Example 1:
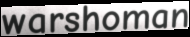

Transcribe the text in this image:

warshoman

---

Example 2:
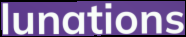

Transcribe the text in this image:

lunations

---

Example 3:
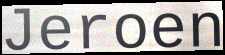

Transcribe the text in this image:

Jeroen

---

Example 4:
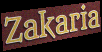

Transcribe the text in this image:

Zakaria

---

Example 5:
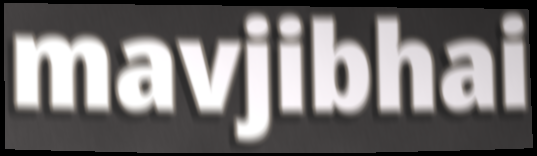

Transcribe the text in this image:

mavjibhai